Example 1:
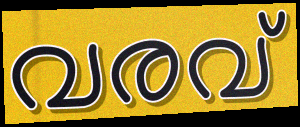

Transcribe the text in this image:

വരവ്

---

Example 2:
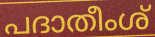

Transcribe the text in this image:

പദാതീംശ്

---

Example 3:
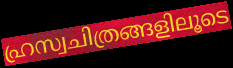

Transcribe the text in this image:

ഹ്രസ്വചിത്രങ്ങളിലൂടെ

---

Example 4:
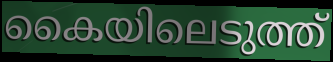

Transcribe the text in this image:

കൈയിലെടുത്ത്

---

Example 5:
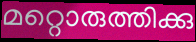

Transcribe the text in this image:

മറ്റൊരുത്തിക്കു